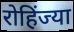
रोहिंज्या